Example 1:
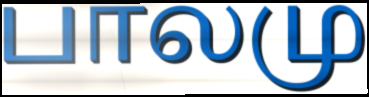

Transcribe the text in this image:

பாலமு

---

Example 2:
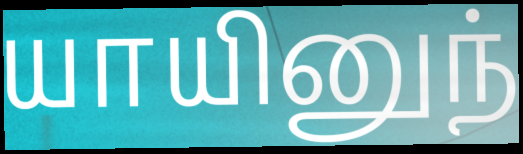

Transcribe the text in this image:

யாயினுந்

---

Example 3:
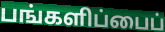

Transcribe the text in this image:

பங்களிப்பைப்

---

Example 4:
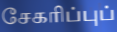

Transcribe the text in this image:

சேகரிப்புப்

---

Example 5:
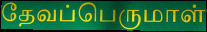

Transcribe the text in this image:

தேவப்பெருமாள்